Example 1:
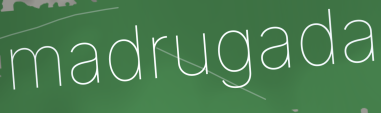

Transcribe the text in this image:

madrugada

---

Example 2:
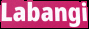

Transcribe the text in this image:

Labangi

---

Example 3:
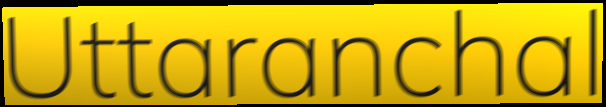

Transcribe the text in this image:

Uttaranchal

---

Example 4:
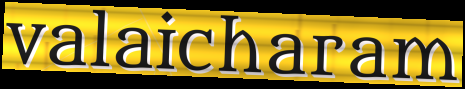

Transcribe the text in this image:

valaicharam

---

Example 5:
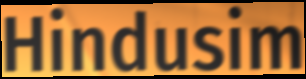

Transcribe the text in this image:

Hindusim